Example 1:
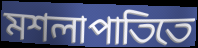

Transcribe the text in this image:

মশলাপাতিতে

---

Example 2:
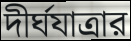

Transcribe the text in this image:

দীর্ঘযাত্রার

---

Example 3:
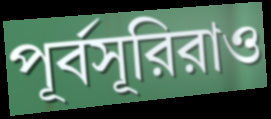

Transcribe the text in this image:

পূর্বসূরিরাও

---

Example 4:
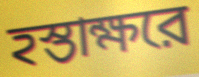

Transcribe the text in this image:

হস্তাক্ষরে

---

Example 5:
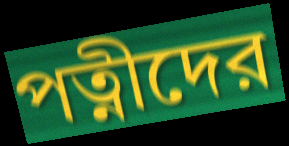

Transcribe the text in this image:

পত্নীদের